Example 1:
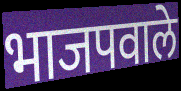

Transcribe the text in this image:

भाजपवाले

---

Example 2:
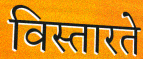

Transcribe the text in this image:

विस्तारते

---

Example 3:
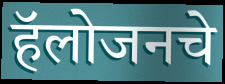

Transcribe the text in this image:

हॅलोजनचे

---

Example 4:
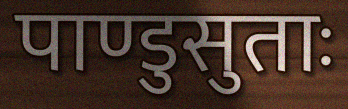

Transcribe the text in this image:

पाण्डुसुताः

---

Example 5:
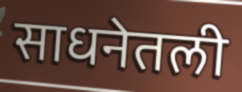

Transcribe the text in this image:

साधनेतली